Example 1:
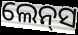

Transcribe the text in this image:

ଲେନ୍‌ସ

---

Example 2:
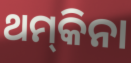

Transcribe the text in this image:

ଥମ୍‍କିନା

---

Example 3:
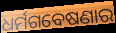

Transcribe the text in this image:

ଧର୍ମଗବେଷଣାର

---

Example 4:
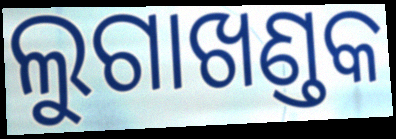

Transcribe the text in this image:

ଲୁଗାଖଣ୍ଡକ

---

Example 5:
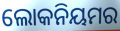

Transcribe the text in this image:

ଲୋକନିୟମର